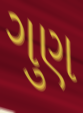
ગુણ